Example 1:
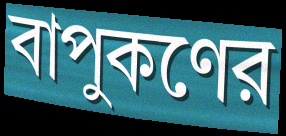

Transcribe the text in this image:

বাপুকণের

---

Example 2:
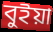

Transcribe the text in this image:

বুইয়া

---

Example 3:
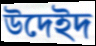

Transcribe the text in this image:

উদেইদ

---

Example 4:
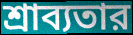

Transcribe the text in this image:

শ্রাব্যতার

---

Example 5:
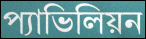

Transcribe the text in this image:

প্যাভিলিয়ন